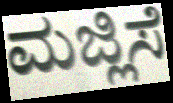
ಮಜ್ಲಿಸೆ